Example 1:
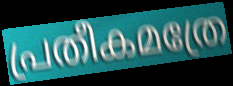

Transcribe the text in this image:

പ്രതീകമത്രേ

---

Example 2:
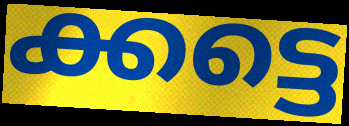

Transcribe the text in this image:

ക്കട്ടെ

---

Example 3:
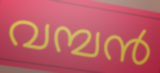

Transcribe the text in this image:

വമ്പൻ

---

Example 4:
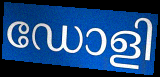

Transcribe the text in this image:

ഡോളി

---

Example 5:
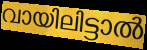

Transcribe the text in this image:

വായിലിട്ടാൽ